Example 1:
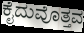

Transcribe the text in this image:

ಕೈದುವೊತ್ತವ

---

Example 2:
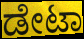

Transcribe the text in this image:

ಡೇಟಾ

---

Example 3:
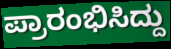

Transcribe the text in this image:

ಪ್ರಾರಂಭಿಸಿದ್ದು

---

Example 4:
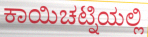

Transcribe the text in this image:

ಕಾಯಿಚಟ್ನಿಯಲ್ಲಿ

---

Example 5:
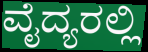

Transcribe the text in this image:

ವೈದ್ಯರಲ್ಲಿ